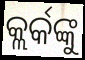
କ୍ଲର୍କଙ୍କୁ